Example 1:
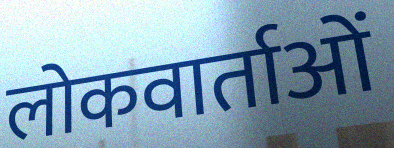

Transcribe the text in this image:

लोकवार्ताओं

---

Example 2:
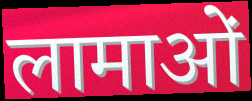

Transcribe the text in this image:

लामाओं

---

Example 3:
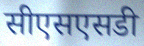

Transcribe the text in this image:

सीएसएसडी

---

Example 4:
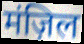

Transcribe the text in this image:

मंज़िल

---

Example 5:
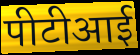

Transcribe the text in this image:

पीटीआई